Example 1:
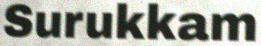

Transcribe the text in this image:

Surukkam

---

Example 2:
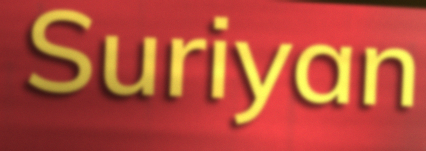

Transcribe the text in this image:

Suriyan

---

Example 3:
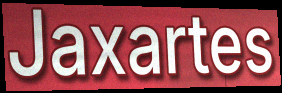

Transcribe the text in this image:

Jaxartes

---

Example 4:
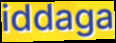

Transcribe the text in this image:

iddaga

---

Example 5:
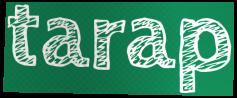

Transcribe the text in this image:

tarap